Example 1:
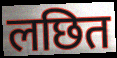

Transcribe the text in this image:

लछित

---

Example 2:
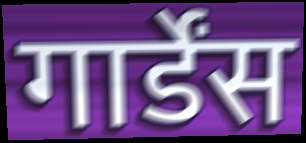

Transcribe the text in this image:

गार्डेंस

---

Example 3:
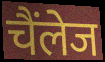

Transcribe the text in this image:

चैंलेज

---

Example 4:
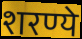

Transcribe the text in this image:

शरण्ये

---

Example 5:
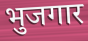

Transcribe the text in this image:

भुजगार